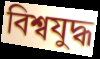
বিশ্বযুদ্ধ